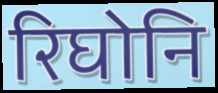
रिघोनि